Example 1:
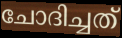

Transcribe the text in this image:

ചോദിച്ചത്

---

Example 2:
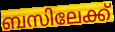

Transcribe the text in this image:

ബസിലേക്ക്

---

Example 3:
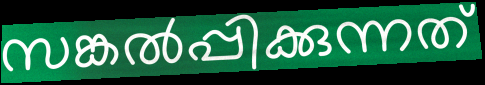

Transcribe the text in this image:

സങ്കൽപ്പിക്കുന്നത്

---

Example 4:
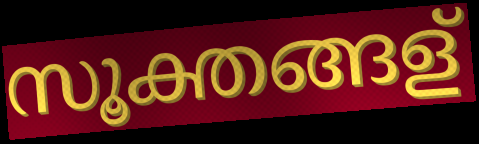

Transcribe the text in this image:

സൂക്തങ്ങള്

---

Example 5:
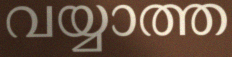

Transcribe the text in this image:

വയ്യാത്ത